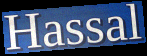
Hassal